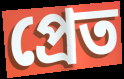
প্ৰেত